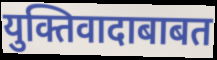
युक्तिवादाबाबत